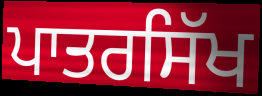
ਪਾਤਰਸਿੱਖ